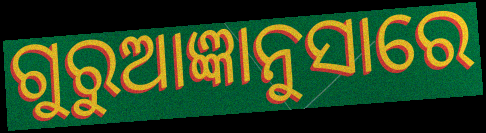
ଗୁରୁଆଜ୍ଞାନୁସାରେ